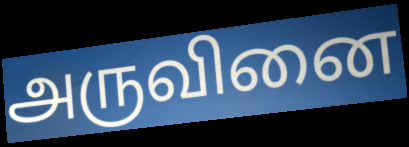
அருவினை